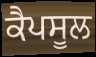
ਕੈਪਸੂਲ